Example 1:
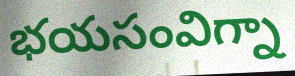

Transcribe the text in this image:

భయసంవిగ్నా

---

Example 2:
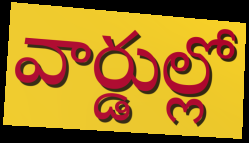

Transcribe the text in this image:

వార్డుల్లో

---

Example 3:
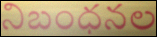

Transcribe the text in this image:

నిబంధనల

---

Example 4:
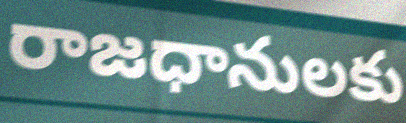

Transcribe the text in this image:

రాజధానులకు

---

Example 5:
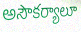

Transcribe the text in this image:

అసౌకర్యాలూ